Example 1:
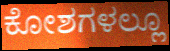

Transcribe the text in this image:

ಕೋಶಗಳಲ್ಲೂ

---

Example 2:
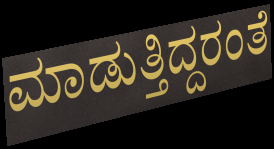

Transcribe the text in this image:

ಮಾಡುತ್ತಿದ್ದರಂತೆ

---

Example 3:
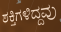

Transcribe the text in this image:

ಶಕ್ತಿಗಳಿದ್ದವು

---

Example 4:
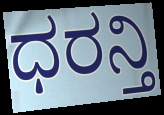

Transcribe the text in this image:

ಧರನ್ತಿ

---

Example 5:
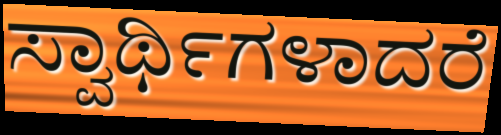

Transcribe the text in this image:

ಸ್ವಾರ್ಥಿಗಳಾದರೆ